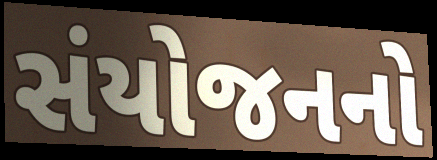
સંયોજનનો